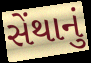
સેંથાનું